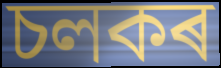
চলকৰ